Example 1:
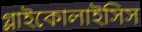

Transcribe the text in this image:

গ্লাইকোলাইসিস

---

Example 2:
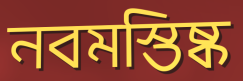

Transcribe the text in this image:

নবমস্তিষ্ক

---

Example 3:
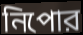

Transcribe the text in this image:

নিপোর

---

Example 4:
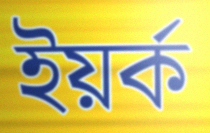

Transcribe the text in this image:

ইয়র্ক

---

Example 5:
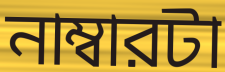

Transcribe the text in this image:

নাম্বারটা